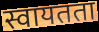
स्वायतता